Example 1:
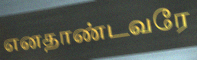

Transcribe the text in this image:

எனதாண்டவரே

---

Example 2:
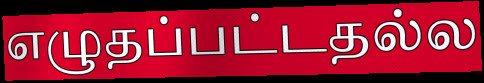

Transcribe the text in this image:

எழுதப்பட்டதல்ல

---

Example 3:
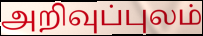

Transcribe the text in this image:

அறிவுப்புலம்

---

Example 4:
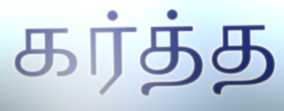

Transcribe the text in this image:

கர்த்த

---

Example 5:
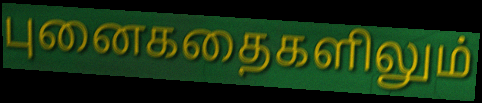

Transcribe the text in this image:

புனைகதைகளிலும்